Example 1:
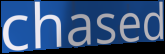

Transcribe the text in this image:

chased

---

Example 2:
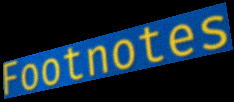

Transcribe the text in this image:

Footnotes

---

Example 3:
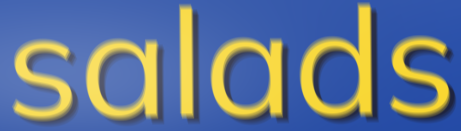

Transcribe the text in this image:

salads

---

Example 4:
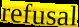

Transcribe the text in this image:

refusal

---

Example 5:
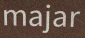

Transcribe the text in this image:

majar